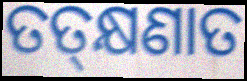
ତତ୍କ୍ଷଣାତ